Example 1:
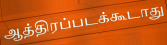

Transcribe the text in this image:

ஆத்திரப்படக்கூடாது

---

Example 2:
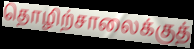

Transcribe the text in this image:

தொழிற்சாலைக்குத்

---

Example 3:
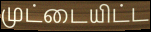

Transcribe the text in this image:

முட்டையிட்ட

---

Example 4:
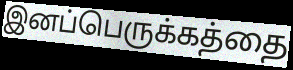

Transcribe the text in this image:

இனப்பெருக்கத்தை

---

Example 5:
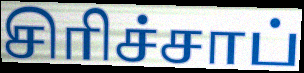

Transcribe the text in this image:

சிரிச்சாப்